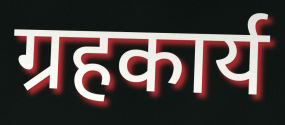
ग्रहकार्य